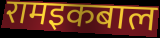
रामइकबाल